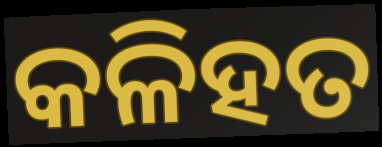
କଳିହତ